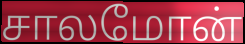
சாலமோன்